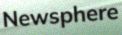
Newsphere